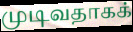
முடிவதாகக்